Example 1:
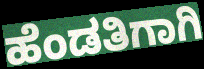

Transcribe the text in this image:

ಹೆಂಡತಿಗಾಗಿ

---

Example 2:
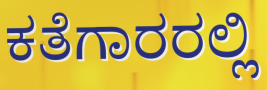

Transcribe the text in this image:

ಕತೆಗಾರರಲ್ಲಿ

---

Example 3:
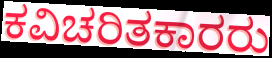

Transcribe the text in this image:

ಕವಿಚರಿತಕಾರರು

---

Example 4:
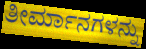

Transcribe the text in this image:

ತೀರ್ಮಾನಗಳನ್ನು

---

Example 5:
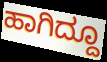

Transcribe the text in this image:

ಹಾಗಿದ್ದೂ